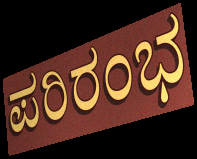
ಪರಿರಂಭ